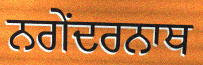
ਨਗੇਂਦਰਨਾਥ